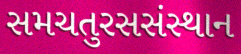
સમચતુરસસંસ્થાન